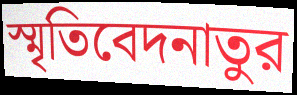
স্মৃতিবেদনাতুর